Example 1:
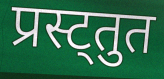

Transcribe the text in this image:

प्रस्ट्तुत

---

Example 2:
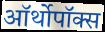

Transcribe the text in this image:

ऑर्थोपॉक्स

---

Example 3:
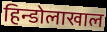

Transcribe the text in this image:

हिन्डोलाखाल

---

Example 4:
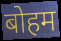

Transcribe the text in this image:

बोहम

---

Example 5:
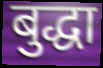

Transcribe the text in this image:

बुद्धा